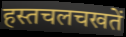
हस्तचलचखतें